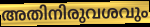
അതിനിരുവശവും